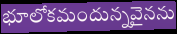
భూలోకమందున్నవైనను